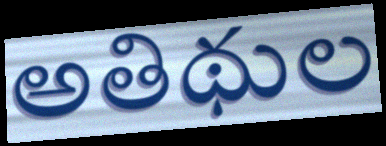
అతిథుల